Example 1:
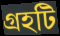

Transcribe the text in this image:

গ্রহটি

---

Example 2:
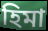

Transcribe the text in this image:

হিমা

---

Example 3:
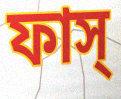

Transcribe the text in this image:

ফাস্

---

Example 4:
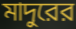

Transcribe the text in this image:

মাদুরের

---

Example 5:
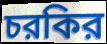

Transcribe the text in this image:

চরকির